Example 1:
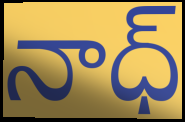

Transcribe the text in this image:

నాధ్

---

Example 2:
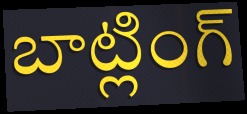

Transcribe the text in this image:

బాట్లింగ్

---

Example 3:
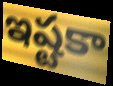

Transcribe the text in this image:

ఇష్టకా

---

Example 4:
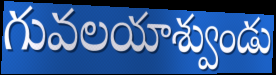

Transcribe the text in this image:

గువలయాశ్వుండు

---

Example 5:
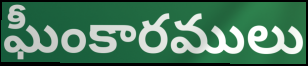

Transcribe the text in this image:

ఘీంకారములు